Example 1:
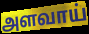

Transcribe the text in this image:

அளவாய்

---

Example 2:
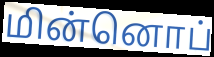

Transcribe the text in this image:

மின்னொப்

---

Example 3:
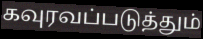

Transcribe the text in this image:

கவுரவப்படுத்தும்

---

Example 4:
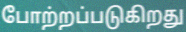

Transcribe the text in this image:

போற்றப்படுகிறது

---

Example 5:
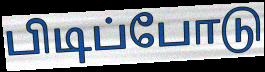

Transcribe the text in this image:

பிடிப்போடு